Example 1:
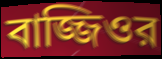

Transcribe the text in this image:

বাজ্জিওর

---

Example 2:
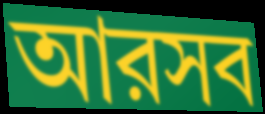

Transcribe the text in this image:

আরসব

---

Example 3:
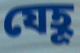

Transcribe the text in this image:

যেহূ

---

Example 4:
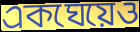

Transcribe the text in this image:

একঘেয়েও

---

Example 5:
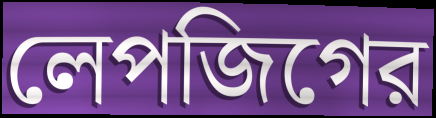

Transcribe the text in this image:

লেপজিগের